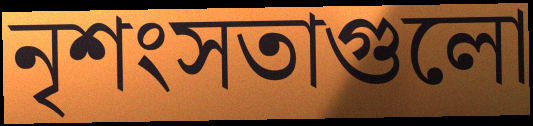
নৃশংসতাগুলো